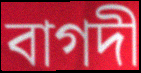
বাগদী